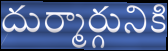
దుర్మార్గునికి